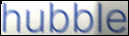
hubble